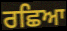
ਰਛਿਆ